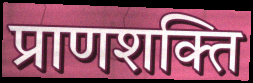
प्राणशक्ति